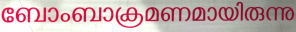
ബോംബാക്രമണമായിരുന്നു